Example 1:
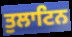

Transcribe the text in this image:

ਤੁਲਾਟਿਨ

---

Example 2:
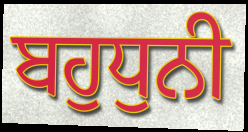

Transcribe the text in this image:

ਬਹੁਧੁਨੀ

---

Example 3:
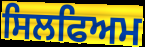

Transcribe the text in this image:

ਸਿਲਫਿਅਮ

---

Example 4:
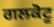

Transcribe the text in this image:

ਗਲਕੋਟੂ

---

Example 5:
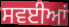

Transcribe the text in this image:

ਸਵਈਆਂ